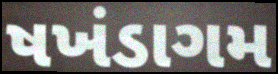
ષખંડાગમ